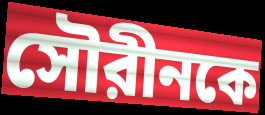
সৌরীনকে